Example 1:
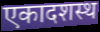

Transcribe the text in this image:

एकादशस्थ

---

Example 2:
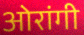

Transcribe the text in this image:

ओरांगी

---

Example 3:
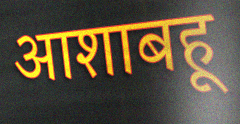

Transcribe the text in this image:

आशाबहू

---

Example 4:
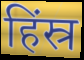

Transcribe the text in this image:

हिंस्र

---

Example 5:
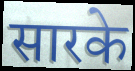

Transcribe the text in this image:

सारके